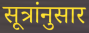
सूत्रांनुसार